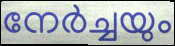
നേർച്ചയും